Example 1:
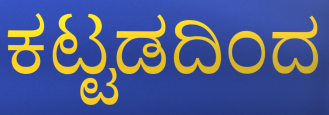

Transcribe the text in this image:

ಕಟ್ಟಡದಿಂದ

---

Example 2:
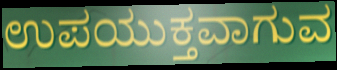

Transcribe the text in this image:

ಉಪಯುಕ್ತವಾಗುವ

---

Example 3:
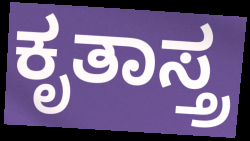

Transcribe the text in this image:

ಕೃತಾಸ್ತ್ರ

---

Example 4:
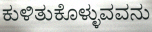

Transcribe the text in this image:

ಕುಳಿತುಕೊಳ್ಳುವವನು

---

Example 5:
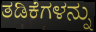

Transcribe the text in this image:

ತಡಿಕೆಗಳನ್ನು